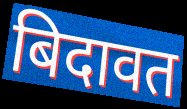
बिदावत